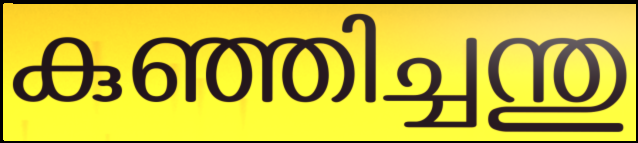
കുഞ്ഞിച്ചന്തു